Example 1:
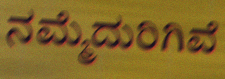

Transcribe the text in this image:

ನಮ್ಮೆದುರಿಗಿವೆ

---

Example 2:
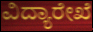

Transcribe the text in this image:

ವಿದ್ಯಾರೇಖೆ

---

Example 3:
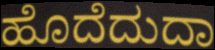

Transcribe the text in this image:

ಹೊದೆದುದಾ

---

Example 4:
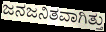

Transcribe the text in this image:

ಜನಜನಿತವಾಗಿತ್ತು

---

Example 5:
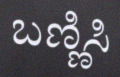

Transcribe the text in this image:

ಬಣ್ಣಿಸಿ